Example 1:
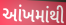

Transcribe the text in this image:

આંખમાંથી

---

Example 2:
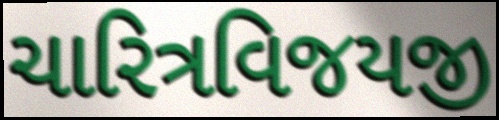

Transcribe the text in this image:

ચારિત્રવિજયજી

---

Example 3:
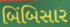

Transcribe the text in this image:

બિંબિસાર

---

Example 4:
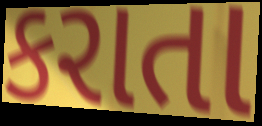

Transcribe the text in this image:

કરાતા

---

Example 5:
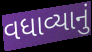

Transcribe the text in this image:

વધાવ્યાનું